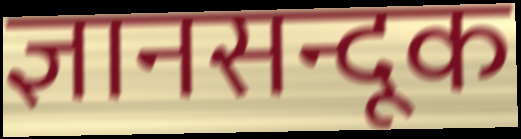
ज्ञानसन्दूक